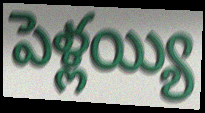
పెళ్లయ్యి